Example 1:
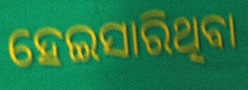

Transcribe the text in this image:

ହେଇସାରିଥିବା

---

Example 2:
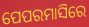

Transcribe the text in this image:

ପେପରମାସିରେ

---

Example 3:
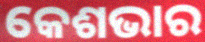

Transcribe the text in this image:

କେଶଭାର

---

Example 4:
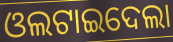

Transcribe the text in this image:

ଓଲଟାଇଦେଲା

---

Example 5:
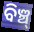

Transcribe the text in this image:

ବିଞ୍ଚ୍